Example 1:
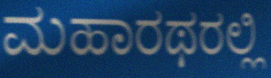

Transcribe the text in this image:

ಮಹಾರಥರಲ್ಲಿ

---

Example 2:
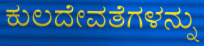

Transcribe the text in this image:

ಕುಲದೇವತೆಗಳನ್ನು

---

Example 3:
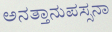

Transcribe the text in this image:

ಅನತ್ತಾನುಪಸ್ಸನಾ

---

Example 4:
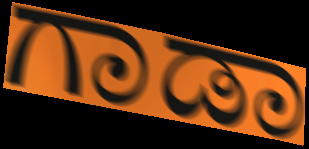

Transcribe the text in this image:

ಗಾಡಾ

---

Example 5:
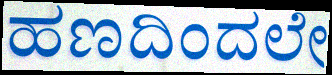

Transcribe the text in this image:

ಹಣದಿಂದಲೇ